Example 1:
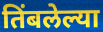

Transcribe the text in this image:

तिंबलेल्या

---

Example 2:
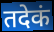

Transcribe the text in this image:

तदेकं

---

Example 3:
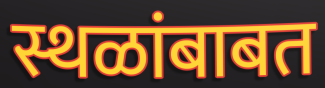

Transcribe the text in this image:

स्थळांबाबत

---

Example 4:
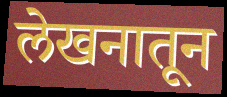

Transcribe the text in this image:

लेखनातून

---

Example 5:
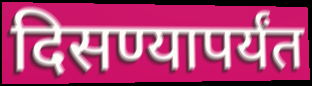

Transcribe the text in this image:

दिसण्यापर्यंत